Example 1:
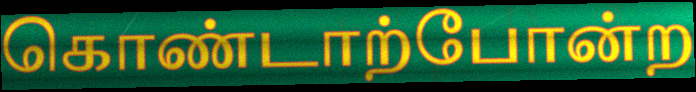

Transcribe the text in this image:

கொண்டாற்போன்ற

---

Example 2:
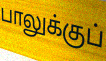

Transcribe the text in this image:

பாலுக்குப்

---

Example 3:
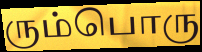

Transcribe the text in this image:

ரும்பொரு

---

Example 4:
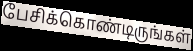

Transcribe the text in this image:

பேசிக்கொண்டிருங்கள்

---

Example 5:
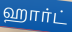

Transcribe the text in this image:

ஹார்ட்